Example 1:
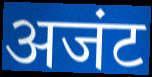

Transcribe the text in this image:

अजंट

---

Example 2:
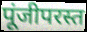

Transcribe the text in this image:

पूंजीपरस्त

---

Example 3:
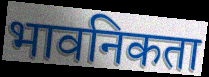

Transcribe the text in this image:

भावनिकता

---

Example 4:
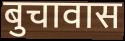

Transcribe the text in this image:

बुचावास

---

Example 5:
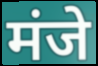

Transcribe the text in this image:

मंजे